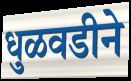
धुळवडीने